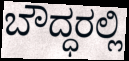
ಬೌದ್ಧರಲ್ಲಿ